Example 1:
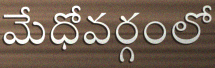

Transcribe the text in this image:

మేధోవర్గంలో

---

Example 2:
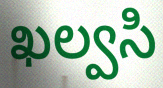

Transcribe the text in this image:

ఖల్వసి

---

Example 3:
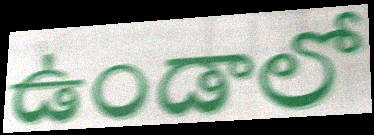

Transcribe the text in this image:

ఉండాలో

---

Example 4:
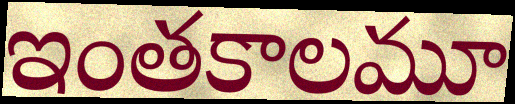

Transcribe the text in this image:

ఇంతకాలమూ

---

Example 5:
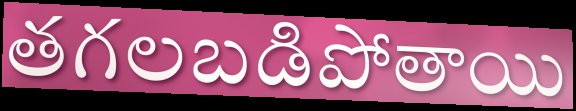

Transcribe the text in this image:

తగలబడిపోతాయి